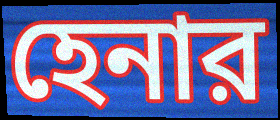
হেনার